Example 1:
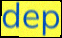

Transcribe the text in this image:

dep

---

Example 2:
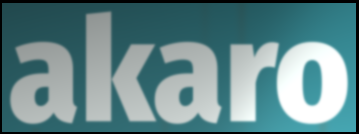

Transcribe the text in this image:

akaro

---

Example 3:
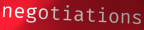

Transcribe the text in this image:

negotiations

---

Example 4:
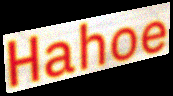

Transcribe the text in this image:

Hahoe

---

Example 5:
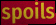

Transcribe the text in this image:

spoils